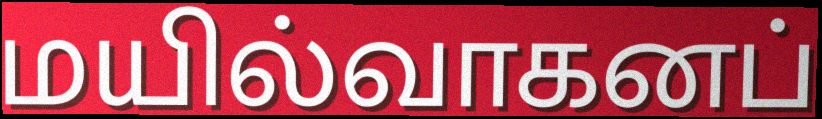
மயில்வாகனப்